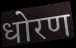
धोरण